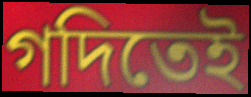
গদিতেই